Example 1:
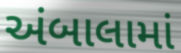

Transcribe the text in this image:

અંબાલામાં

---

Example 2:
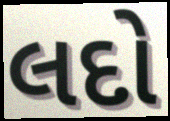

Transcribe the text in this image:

લદો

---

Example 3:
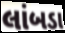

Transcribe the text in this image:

લાંબડા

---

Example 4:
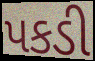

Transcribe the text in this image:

પકડી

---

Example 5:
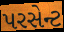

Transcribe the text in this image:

પરસેન્ટ